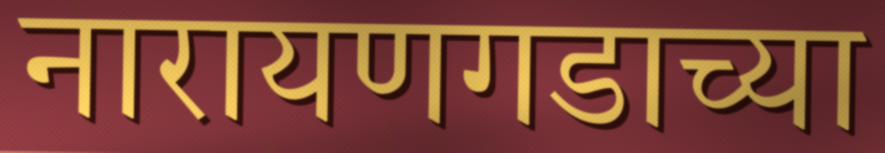
नारायणगडाच्या